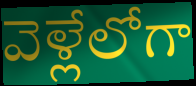
వెళ్లేలోగా